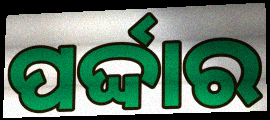
ପର୍ଦ୍ଦାର